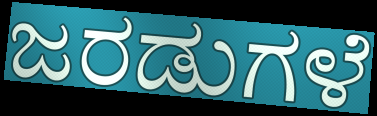
ಜರಡುಗಳೆ